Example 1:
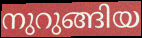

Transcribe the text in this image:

നുറുങ്ങിയ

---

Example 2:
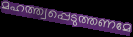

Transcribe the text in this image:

മഹത്ത്വപ്പെടുത്തണമേ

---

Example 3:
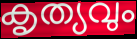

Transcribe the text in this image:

കൃത്യവും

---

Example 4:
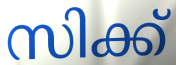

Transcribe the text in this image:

സിക്ക്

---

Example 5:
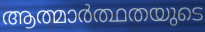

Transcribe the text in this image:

ആത്മാർത്ഥതയുടെ